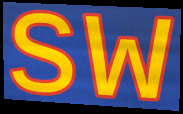
sw